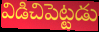
విడిచిపెట్టడు